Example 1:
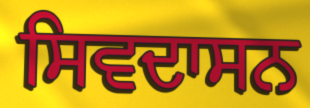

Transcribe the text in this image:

ਸਿਵਦਾਸਨ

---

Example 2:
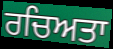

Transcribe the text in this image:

ਰਚਿਅਤਾ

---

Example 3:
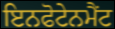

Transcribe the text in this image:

ਇਨਫੋਟੇਨਮੈਂਟ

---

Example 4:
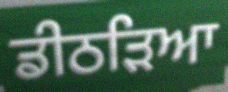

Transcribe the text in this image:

ਡੀਠੜਿਆ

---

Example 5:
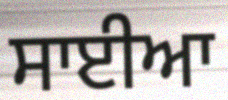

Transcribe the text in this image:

ਸਾਈਆ